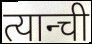
त्यान्ची